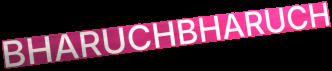
BHARUCHBHARUCH